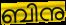
ബിനു